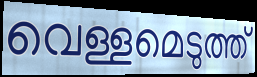
വെള്ളമെടുത്ത്